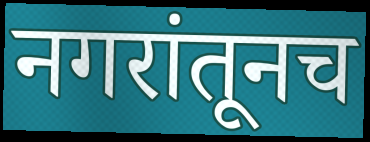
नगरांतूनच